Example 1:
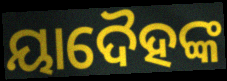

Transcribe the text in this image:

ୟାଦୈହଙ୍କ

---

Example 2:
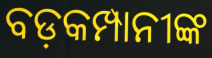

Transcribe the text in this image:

ବଡ଼କମ୍ପାନୀଙ୍କ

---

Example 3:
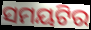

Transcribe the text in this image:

ସମୟଟିର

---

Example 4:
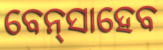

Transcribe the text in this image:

ବେନ୍‌ସାହେବ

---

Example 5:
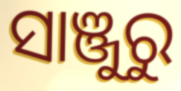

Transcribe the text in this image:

ସାଞ୍ଜୁରୁ